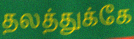
தலத்துக்கே